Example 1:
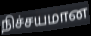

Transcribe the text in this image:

நிச்சயமான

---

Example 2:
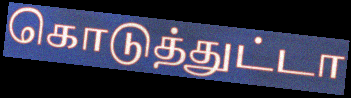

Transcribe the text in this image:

கொடுத்துட்டா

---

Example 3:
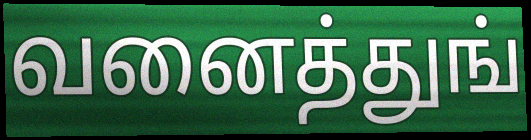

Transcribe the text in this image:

வனைத்துங்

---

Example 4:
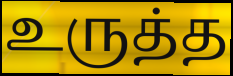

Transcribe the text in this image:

உருத்த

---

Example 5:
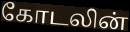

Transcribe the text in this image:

கோடலின்